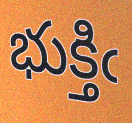
భుక్తిఁ